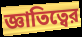
জ্ঞাতিত্বের